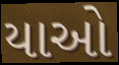
યાઓ